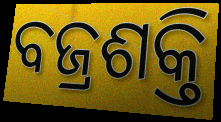
ବଜ୍ରଶକ୍ତି